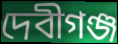
দেবীগঞ্জ